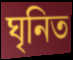
ঘৃনিত